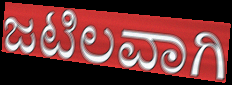
ಜಟಿಲವಾಗಿ